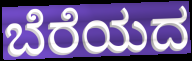
ಬೆರೆಯದ